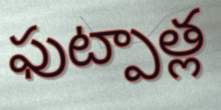
ఫుట్పాత్ల